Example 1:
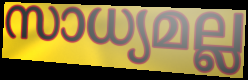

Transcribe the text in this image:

സാധ്യമല്ല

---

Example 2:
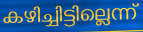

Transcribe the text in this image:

കഴിച്ചിട്ടില്ലെന്ന്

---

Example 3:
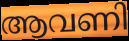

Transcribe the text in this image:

ആവണി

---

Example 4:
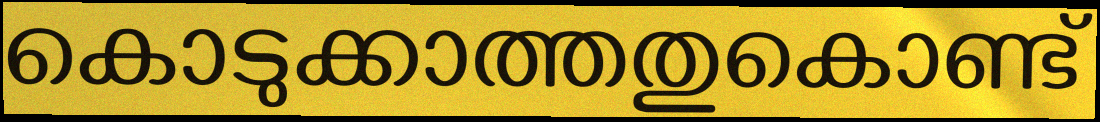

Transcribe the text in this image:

കൊടുക്കാത്തതുകൊണ്ട്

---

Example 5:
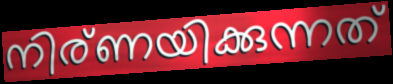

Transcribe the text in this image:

നിര്ണയിക്കുന്നത്